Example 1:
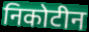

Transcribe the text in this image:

निकोटीन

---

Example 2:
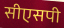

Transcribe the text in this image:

सीएसपी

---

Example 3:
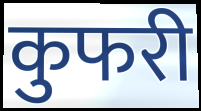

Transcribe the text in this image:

कुफरी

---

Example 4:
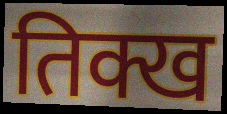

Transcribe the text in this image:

तिक्ख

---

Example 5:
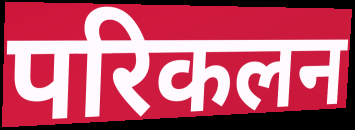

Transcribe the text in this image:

परिकलन